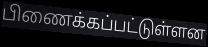
பிணைக்கப்பட்டுள்ளன